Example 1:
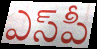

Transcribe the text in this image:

ఎస్‌పీ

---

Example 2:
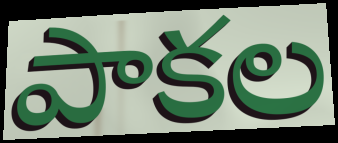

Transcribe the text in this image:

పాకల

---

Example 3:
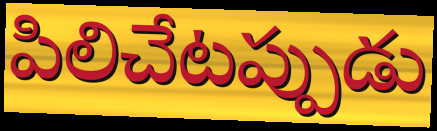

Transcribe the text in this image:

పిలిచేటప్పుడు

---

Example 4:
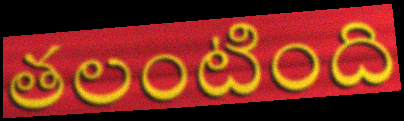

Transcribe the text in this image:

తలంటింది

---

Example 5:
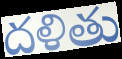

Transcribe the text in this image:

దళితు